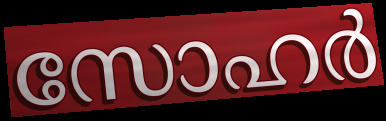
സോഹർ